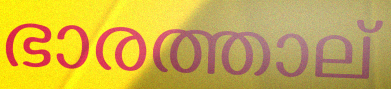
ഭാരത്താല്